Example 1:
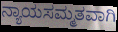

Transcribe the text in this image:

ನ್ಯಾಯಸಮ್ಮತವಾಗಿ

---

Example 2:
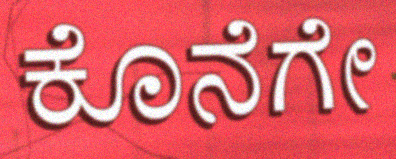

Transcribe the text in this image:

ಕೊನೆಗೇ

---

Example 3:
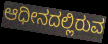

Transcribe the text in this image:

ಆಧೀನದಲ್ಲಿರುವ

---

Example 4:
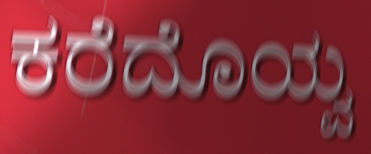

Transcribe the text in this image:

ಕರೆದೊಯ್ವ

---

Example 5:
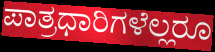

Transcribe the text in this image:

ಪಾತ್ರಧಾರಿಗಳೆಲ್ಲರೂ